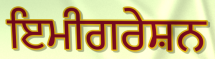
ਇਮੀਗਰੇਸ਼ਨ